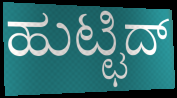
ಹುಟ್ಟಿದ್